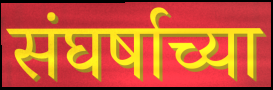
संघर्षाच्या